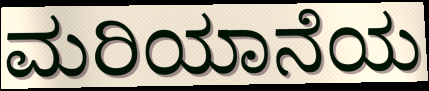
ಮರಿಯಾನೆಯ